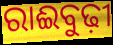
ରାଈବୁଢ଼ୀ